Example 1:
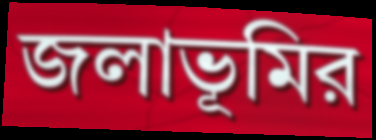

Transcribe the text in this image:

জলাভূমির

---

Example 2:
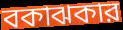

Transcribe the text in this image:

বকাঝকার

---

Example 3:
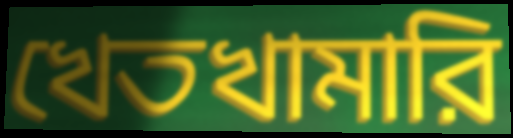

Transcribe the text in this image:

খেতখামারি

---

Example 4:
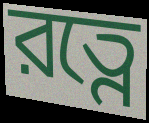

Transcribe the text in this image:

রত্নে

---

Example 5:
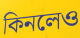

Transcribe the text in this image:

কিনলেও